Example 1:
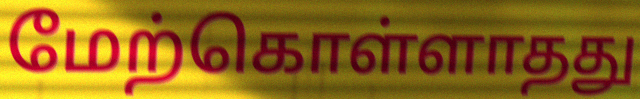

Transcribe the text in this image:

மேற்கொள்ளாதது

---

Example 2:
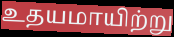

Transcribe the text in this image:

உதயமாயிற்று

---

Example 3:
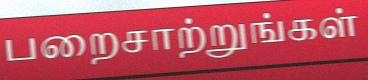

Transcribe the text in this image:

பறைசாற்றுங்கள்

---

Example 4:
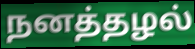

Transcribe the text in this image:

நனத்தழல்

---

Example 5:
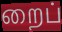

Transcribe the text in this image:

றைப்